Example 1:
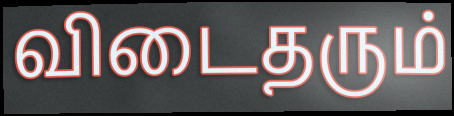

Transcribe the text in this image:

விடைதரும்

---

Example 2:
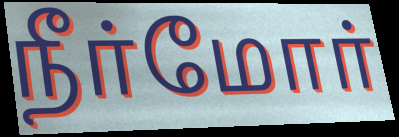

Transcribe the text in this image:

நீர்மோர்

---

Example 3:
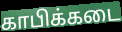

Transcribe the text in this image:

காபிக்கடை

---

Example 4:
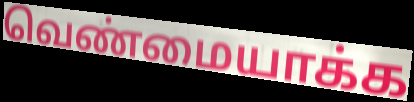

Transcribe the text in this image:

வெண்மையாக்க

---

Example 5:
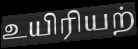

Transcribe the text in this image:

உயிரியற்